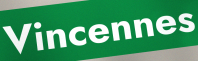
Vincennes